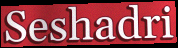
Seshadri